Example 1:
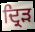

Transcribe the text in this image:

ਦ੍ਰਿਡ਼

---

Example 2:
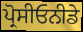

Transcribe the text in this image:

ਪ੍ਰੋਸੀਓਨੀਡੇ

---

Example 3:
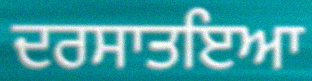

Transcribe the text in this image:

ਦਰਸਾਤਇਆ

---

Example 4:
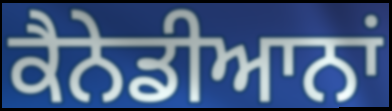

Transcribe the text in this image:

ਕੈਨੇਡੀਆਨਾਂ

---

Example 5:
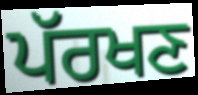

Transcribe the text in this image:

ਪੱਰਖਣ